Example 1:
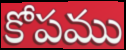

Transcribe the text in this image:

కోపము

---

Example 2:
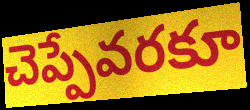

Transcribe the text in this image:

చెప్పేవరకూ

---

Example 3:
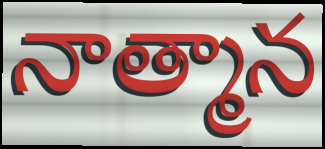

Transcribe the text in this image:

నాత్మాన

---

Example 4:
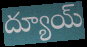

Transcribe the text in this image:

ద్యూయ్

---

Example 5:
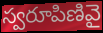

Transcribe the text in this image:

స్వరూపిణివై